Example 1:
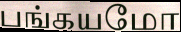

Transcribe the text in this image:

பங்கயமோ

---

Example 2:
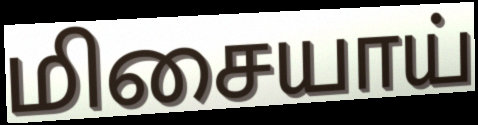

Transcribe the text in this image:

மிசையாய்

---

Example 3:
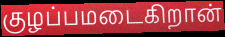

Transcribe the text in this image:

குழப்பமடைகிறான்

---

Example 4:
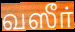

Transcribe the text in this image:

வஸீர்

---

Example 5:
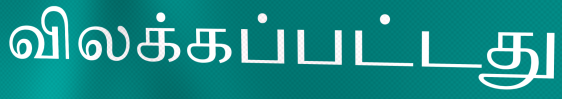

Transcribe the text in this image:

விலக்கப்பட்டது